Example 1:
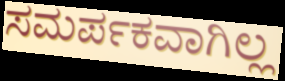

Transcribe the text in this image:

ಸಮರ್ಪಕವಾಗಿಲ್ಲ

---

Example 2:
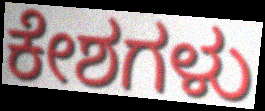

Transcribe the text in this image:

ಕೇಶಗಳು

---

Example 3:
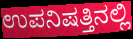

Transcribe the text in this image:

ಉಪನಿಷತ್ತಿನಲ್ಲಿ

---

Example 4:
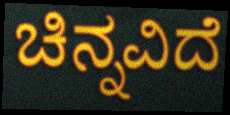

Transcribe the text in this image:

ಚಿನ್ನವಿದೆ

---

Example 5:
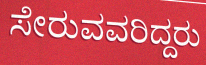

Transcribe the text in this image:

ಸೇರುವವರಿದ್ದರು